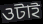
ওটাই